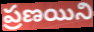
ప్రణయిని